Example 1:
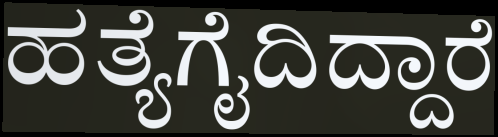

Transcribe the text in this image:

ಹತ್ಯೆಗೈದಿದ್ದಾರೆ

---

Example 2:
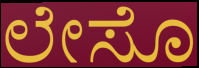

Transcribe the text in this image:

ಲೇಸೊ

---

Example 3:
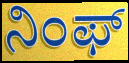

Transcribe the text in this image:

ನಿಂಫ್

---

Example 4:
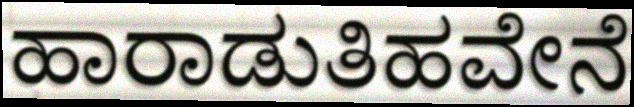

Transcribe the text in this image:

ಹಾರಾಡುತಿಹವೇನೆ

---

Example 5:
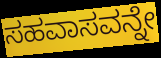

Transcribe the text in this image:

ಸಹವಾಸವನ್ನೇ